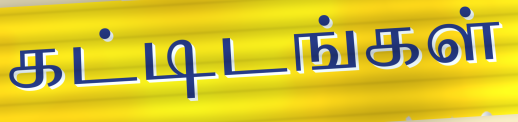
கட்டிடங்கள்